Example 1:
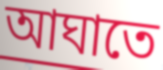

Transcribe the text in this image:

আঘাতে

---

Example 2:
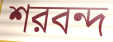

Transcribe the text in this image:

শরবন্দ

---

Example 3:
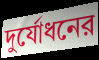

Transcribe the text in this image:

দুর্যোধনের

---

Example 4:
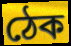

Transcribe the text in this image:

ঠেক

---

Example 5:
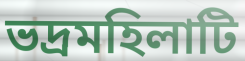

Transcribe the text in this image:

ভদ্রমহিলাটি